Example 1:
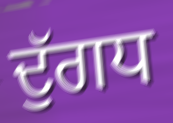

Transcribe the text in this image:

ਦੁੱਗਧ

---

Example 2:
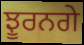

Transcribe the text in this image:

ਝੂਰਨਗੇ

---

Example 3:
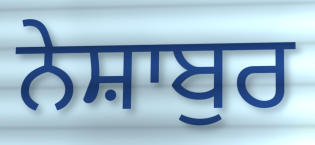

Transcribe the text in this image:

ਨੇਸ਼ਾਬੁਰ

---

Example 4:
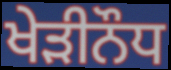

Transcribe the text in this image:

ਖੇੜੀਨੌਧ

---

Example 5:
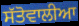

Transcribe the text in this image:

ਸੱਤੋਵਾਲੀਆ